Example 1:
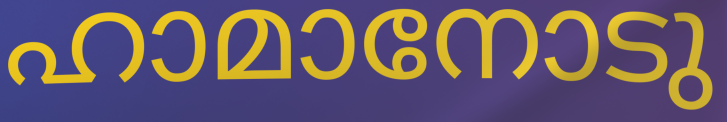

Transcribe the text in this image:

ഹാമാനോടു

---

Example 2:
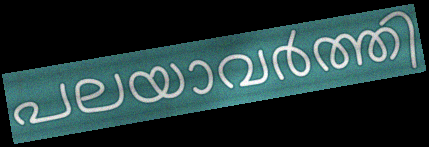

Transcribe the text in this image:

പലയാവർത്തി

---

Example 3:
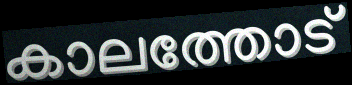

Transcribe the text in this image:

കാലത്തോട്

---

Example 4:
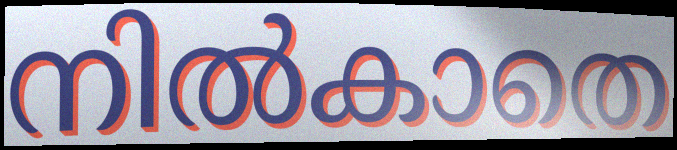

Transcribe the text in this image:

നിൽകാതെ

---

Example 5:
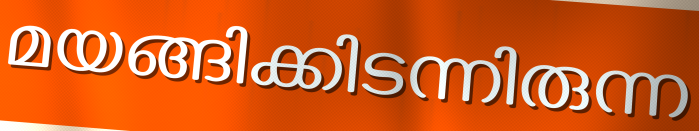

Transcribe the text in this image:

മയങ്ങിക്കിടന്നിരുന്ന